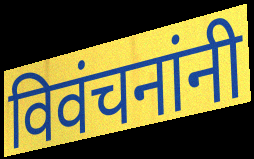
विवंचनांनी